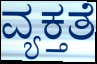
ವ್ಯಕ್ತತೆ